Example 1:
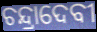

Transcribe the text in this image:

ଚନ୍ଦ୍ରାଦେବୀ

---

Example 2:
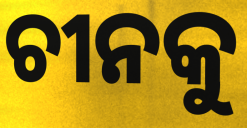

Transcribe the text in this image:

ଚୀନକୁ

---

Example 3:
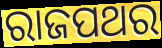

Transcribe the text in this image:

ରାଜପଥର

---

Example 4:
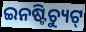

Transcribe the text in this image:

ଇନଷ୍ଟିଚ୍ୟୁଟ୍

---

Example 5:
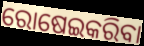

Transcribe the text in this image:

ରୋଷେଇକରିବା